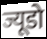
ज्यूडो